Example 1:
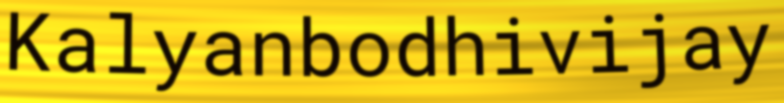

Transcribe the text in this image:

Kalyanbodhivijay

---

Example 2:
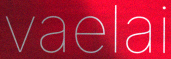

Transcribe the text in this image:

vaelai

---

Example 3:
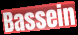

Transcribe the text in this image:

Bassein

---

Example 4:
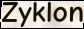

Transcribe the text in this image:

Zyklon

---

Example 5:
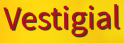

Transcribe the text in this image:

Vestigial